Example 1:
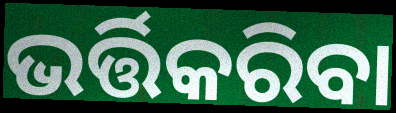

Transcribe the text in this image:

ଭର୍ତ୍ତିକରିବା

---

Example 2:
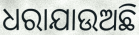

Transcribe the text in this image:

ଧରାଯାଉଅଛି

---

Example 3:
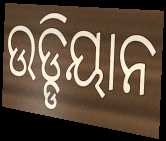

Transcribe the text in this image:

ଉଡ୍ଡିୟାନ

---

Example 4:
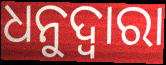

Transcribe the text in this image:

ଧନୁଦ୍ୱାରା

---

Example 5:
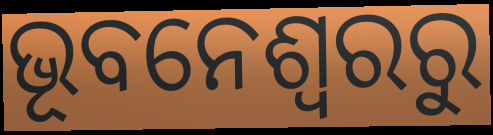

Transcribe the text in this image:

ଭୂବନେଶ୍ୱରରୁ